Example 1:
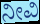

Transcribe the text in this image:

ನೀವಿ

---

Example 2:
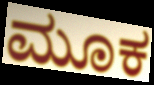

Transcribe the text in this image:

ಮೂಕ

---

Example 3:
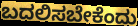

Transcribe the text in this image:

ಬದಲಿಸಬೇಕೆಂದು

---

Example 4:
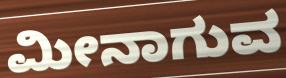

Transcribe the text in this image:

ಮೀನಾಗುವ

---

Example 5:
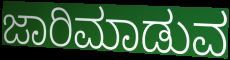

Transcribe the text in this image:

ಜಾರಿಮಾಡುವ